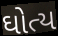
ઘોત્ય